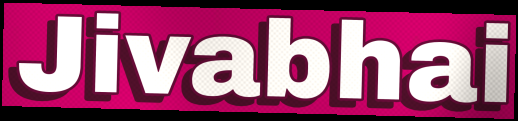
Jivabhai